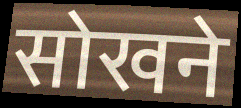
सोखने